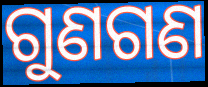
ଗୁଣଗଣ